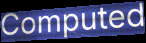
Computed